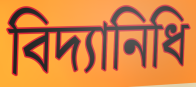
বিদ্যানিধি